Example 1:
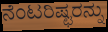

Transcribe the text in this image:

ನೆಂಟರಿಷ್ಟರನ್ನು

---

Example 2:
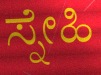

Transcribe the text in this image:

ಸ್ನೇಹಿ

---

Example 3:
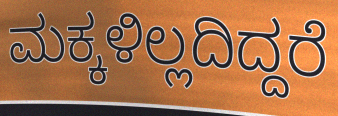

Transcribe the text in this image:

ಮಕ್ಕಳಿಲ್ಲದಿದ್ದರೆ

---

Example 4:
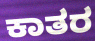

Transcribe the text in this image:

ಕಾತರ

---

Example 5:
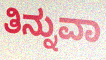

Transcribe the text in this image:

ತಿನ್ನುವಾ